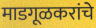
माडगूळकरांचे